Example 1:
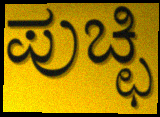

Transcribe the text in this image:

ಪುಚ್ಛಿ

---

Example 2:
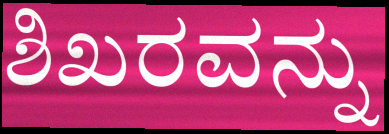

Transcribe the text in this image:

ಶಿಖರವನ್ನು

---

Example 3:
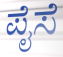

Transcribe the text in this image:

ಪೈಸೆ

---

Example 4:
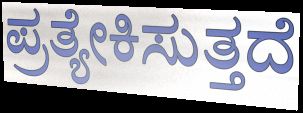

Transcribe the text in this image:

ಪ್ರತ್ಯೇಕಿಸುತ್ತದೆ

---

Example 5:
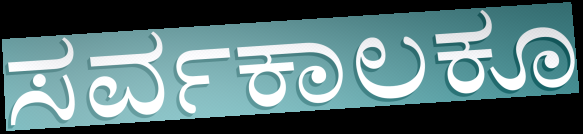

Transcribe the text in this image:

ಸರ್ವಕಾಲಕೂ